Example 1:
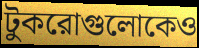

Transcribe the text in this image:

টুকরোগুলোকেও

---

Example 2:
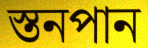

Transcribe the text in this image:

স্তনপান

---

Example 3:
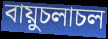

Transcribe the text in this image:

বায়ুচলাচল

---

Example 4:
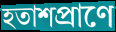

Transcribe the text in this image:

হতাশপ্রাণে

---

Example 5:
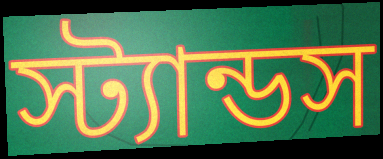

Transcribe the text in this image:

স্ট্যান্ডস